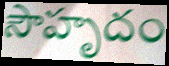
సౌహృదం